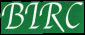
BIRC